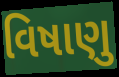
વિષાણુ